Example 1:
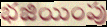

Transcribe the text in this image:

భజియింపు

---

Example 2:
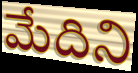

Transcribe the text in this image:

మేదిని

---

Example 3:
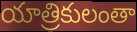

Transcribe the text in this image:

యాత్రికులంతా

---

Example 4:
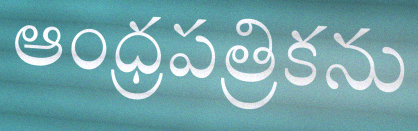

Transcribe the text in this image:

ఆంధ్రపత్రికను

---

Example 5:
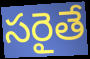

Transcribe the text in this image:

సరైతే